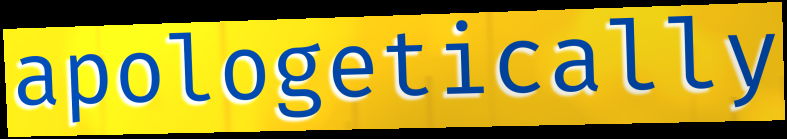
apologetically